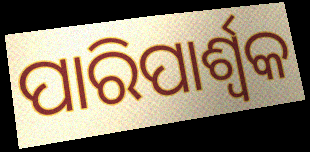
ପାରିପାର୍ଶ୍ବକ